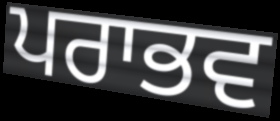
ਪਰਾਭਵ